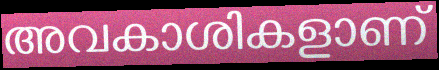
അവകാശികളാണ്